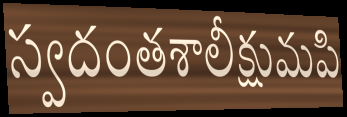
స్వదంతశాలీక్షుమపి